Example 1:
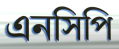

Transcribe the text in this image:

এনসিপি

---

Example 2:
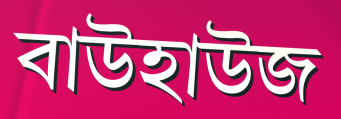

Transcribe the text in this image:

বাউহাউজ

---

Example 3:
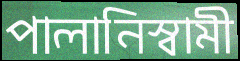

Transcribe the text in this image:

পালানিস্বামী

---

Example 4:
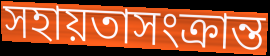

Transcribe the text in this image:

সহায়তাসংক্রান্ত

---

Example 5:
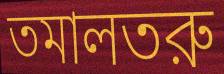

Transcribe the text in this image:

তমালতরু